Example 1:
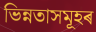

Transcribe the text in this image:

ভিন্নতাসমূহৰ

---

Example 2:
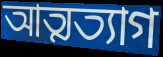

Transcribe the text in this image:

আত্মত্যাগ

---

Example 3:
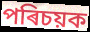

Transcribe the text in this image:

পৰিচয়ক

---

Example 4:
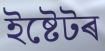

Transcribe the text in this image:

ইষ্টেটৰ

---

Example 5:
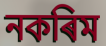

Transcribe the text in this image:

নকৰিম